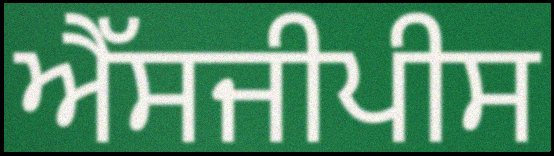
ਐੱਸਜੀਪੀਸ